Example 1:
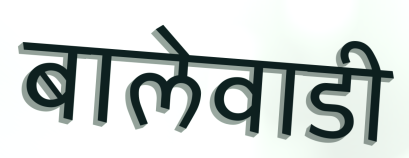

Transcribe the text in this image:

बालेवाडी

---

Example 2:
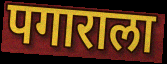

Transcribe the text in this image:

पगाराला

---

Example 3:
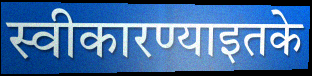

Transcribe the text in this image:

स्वीकारण्याइतके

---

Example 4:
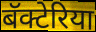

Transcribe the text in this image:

बॅक्टेरिया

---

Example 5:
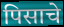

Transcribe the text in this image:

पिसाचे